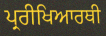
ਪ੍ਰਰੀਖਿਆਰਥੀ